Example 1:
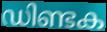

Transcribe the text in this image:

ഡിണ്ടക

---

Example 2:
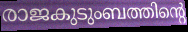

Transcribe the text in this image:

രാജകുടുംബത്തിന്റെ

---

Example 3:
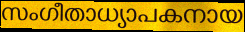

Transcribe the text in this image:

സംഗീതാധ്യാപകനായ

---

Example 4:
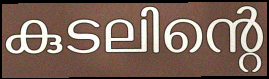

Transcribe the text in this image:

കുടലിന്റെ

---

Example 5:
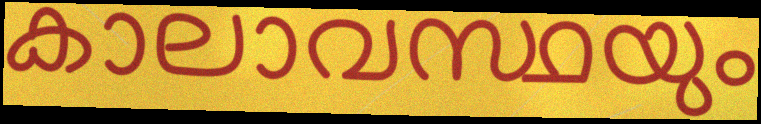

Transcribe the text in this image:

കാലാവസ്ഥയും